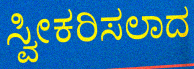
ಸ್ವೀಕರಿಸಲಾದ